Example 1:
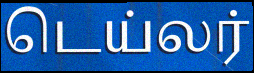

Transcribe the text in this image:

டெய்லர்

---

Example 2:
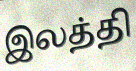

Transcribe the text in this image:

இலத்தி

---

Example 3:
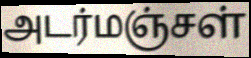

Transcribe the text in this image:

அடர்மஞ்சள்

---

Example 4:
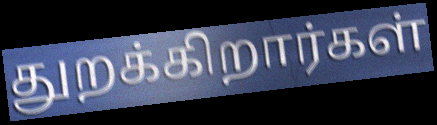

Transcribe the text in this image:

துறக்கிறார்கள்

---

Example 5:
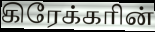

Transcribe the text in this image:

கிரேக்கரின்